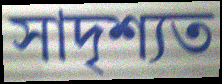
সাদৃশ্যত